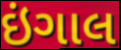
ઇંગાલ